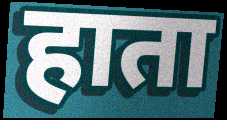
हाता